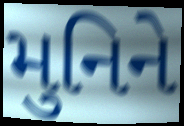
મુનિને